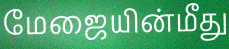
மேஜையின்மீது